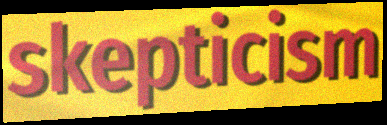
skepticism